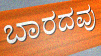
ಬಾರದವು